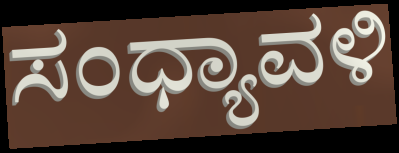
ಸಂಧ್ಯಾವಳಿ